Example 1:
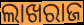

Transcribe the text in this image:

ଲାଖରାଜ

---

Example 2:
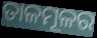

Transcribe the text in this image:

ତାଳମୂଳର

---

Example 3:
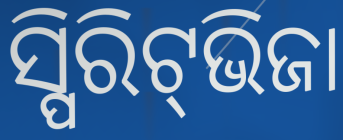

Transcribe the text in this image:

ସ୍ପିରିଟ୍‌ଭିଜା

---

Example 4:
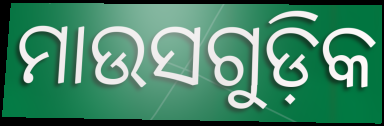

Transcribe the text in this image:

ମାଉସଗୁଡ଼ିକ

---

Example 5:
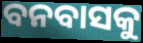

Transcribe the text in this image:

ବନବାସକୁ